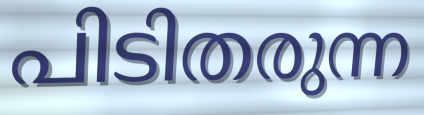
പിടിതരുന്ന